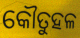
କୌତୁହଳ